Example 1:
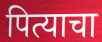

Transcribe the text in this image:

पित्याचा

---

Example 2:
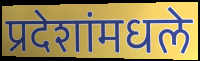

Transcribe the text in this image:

प्रदेशांमधले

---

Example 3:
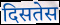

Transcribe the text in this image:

दिसतेस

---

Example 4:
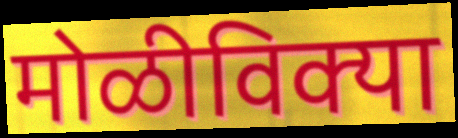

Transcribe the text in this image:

मोळीविक्या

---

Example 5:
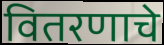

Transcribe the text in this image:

वितरणाचे